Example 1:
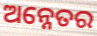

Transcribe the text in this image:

ଅନ୍ନେତର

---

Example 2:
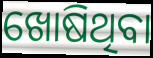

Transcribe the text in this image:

ଖୋଷିଥିବା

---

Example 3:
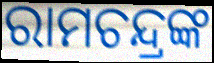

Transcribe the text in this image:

ରାମଚନ୍ଦ୍ରଙ୍କ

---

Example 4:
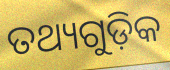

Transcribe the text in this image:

ତଥ୍ୟଗୁଡ଼ିକ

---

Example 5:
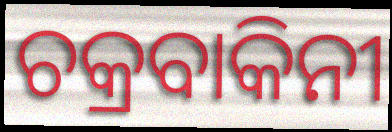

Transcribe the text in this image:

ଚକ୍ରବାକିନୀ